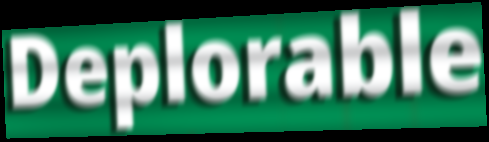
Deplorable